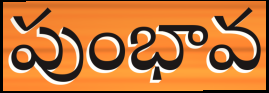
పుంభావ